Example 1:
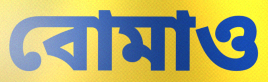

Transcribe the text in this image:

বোমাও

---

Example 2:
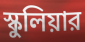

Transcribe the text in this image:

স্কুলিয়ার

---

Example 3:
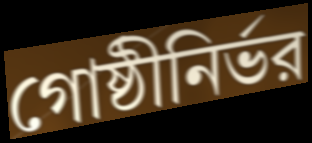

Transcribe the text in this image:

গোষ্ঠীনির্ভর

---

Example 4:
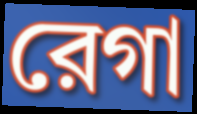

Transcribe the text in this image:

রেগা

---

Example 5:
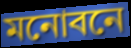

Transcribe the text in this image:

মনোবনে